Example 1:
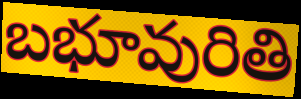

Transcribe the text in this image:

బభూవురితి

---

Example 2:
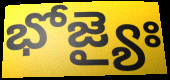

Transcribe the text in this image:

భోజ్యైః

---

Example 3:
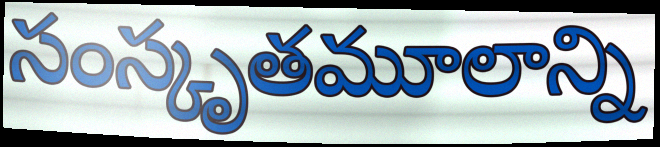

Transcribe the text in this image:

సంస్కృతమూలాన్ని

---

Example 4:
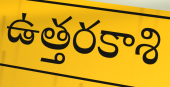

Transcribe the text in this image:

ఉత్తరకాశి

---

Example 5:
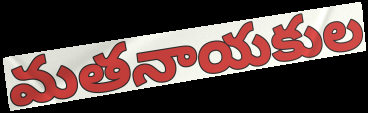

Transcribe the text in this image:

మతనాయకుల